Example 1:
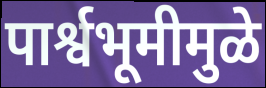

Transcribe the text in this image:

पार्श्वभूमीमुळे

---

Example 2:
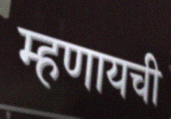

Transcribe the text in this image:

म्हणायची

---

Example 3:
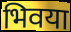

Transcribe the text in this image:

भिवया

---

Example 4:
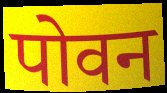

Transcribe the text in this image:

पोवन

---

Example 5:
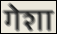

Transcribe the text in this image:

गेशा